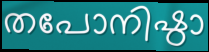
തപോനിഷ്ഠാ